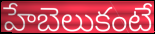
హేబెలుకంటే